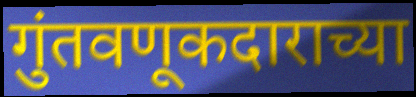
गुंतवणूकदाराच्या